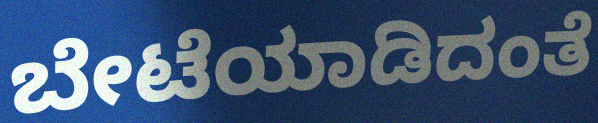
ಬೇಟೆಯಾಡಿದಂತೆ